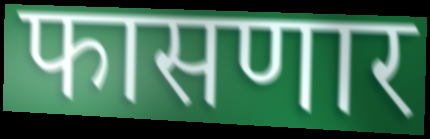
फासणार